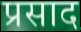
प्रसाद